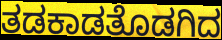
ತಡಕಾಡತೊಡಗಿದ